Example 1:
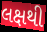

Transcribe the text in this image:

લક્ષથી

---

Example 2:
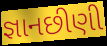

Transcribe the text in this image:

જ્ઞાનછીણી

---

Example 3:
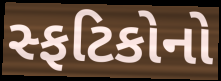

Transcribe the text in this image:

સ્ફટિકોનો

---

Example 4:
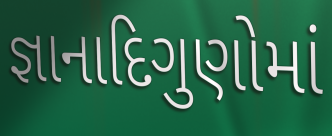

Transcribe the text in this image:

જ્ઞાનાદિગુણોમાં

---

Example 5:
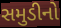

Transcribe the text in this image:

સમુડીનો